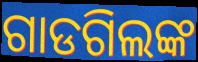
ଗାଡଗିଲଙ୍କ